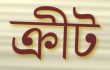
ক্রীট